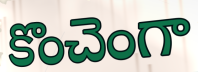
కొంచెంగా